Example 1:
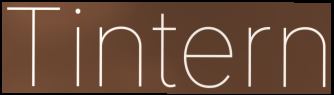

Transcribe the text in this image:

Tintern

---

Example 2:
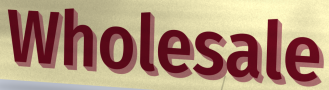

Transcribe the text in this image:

Wholesale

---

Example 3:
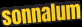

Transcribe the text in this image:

sonnalum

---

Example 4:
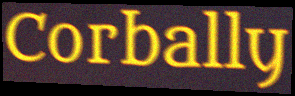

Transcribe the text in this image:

Corbally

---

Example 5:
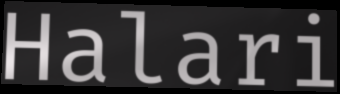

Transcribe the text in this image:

Halari